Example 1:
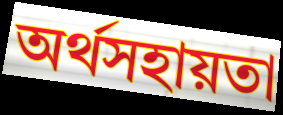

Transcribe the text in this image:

অর্থসহায়তা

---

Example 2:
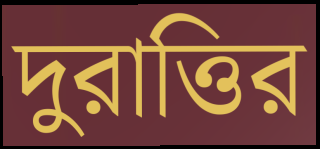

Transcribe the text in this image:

দুরাত্তির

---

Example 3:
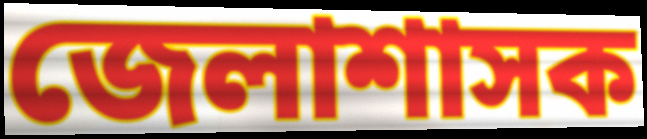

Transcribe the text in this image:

জেলাশাসক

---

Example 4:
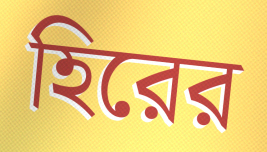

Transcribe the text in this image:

হিরের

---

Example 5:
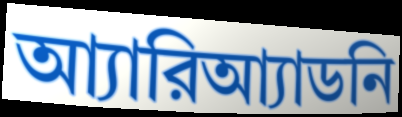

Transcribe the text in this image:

আ্যারিআ্যাডনি